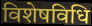
विशेषविधि